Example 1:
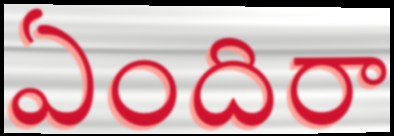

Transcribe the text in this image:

ఏందిరా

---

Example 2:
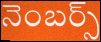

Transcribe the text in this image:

నెంబర్స్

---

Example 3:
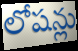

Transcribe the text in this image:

లోషన్లు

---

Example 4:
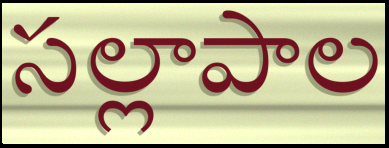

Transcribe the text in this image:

సల్లాపాల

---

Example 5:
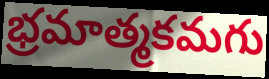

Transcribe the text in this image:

భ్రమాత్మకమగు